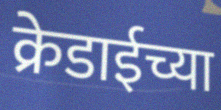
क्रेडाईच्या